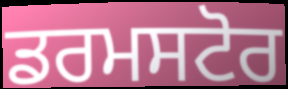
ਡਰਮਸਟੋਰ